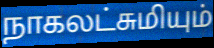
நாகலட்சுமியும்